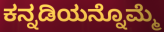
ಕನ್ನಡಿಯನ್ನೊಮ್ಮೆ